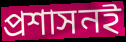
প্রশাসনই